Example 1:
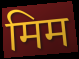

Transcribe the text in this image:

मिम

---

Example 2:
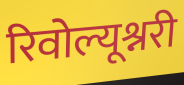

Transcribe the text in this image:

रिवोल्यूश्नरी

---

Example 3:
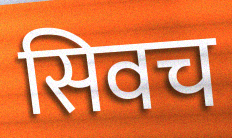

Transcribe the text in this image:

सिवच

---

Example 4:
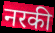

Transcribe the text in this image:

नरकी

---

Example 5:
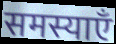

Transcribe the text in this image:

समस्याएँ